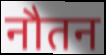
नौतन